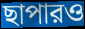
ছাপারও